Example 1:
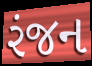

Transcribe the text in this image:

રંજન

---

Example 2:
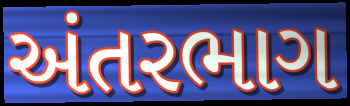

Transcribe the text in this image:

અંતરભાગ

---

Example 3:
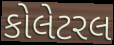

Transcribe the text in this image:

કોલેટરલ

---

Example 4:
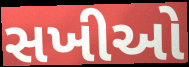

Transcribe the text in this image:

સખીઓ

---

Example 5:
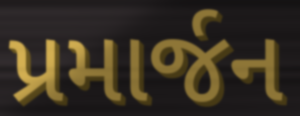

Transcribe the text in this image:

પ્રમાર્જન